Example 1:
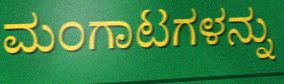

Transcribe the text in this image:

ಮಂಗಾಟಗಳನ್ನು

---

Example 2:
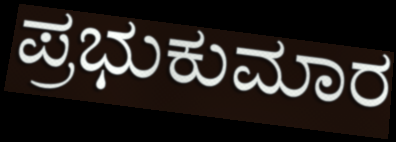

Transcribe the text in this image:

ಪ್ರಭುಕುಮಾರ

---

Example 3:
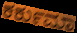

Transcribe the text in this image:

ಕರ್ಕುಮಾ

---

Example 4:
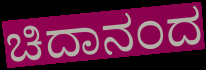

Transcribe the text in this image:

ಚಿದಾನಂದ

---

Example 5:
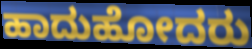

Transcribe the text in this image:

ಹಾದುಹೋದರು